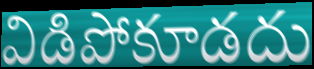
విడిపోకూడదు